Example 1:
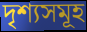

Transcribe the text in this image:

দৃশ্যসমূহ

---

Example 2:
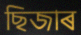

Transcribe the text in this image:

ছিজাৰ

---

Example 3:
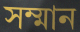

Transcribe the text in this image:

সম্মান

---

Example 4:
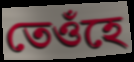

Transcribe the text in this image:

তেওঁহে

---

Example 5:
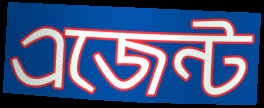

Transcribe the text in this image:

এজেন্ট